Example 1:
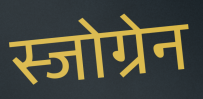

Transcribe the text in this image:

स्जोग्रेन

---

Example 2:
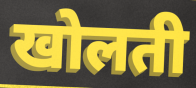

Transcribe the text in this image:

खोलती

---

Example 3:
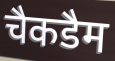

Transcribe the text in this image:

चैकडैम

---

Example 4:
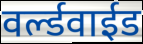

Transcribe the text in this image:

वर्ल्डवाईड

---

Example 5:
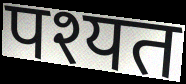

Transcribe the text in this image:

पश्यत